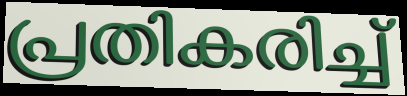
പ്രതികരിച്ച്